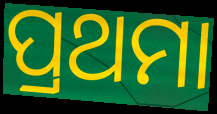
ପ୍ରଥମା